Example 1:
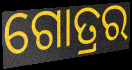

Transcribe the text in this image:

ଗୋତ୍ରର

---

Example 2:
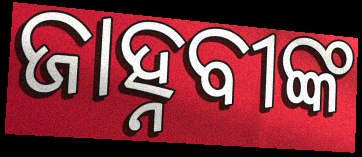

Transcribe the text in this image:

ଜାହ୍ନବୀଙ୍କ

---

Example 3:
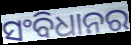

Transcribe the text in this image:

ସଂବିଧାନର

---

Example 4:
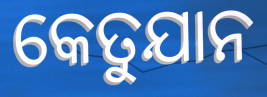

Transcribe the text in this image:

କେତୁଯାନ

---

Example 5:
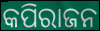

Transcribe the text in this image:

କପିରାଜନ